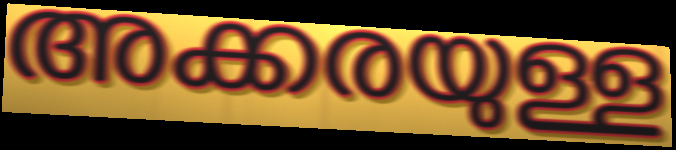
അക്കരയുള്ള